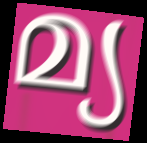
മ്യ